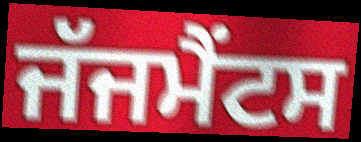
ਜੱਜਮੈਂਟਸ